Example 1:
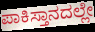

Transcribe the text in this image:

ಪಾಕಿಸ್ತಾನದಲ್ಲೇ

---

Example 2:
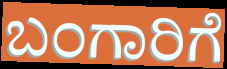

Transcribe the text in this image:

ಬಂಗಾರಿಗೆ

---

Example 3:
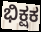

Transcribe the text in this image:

ಭಿಕ್ಷಕ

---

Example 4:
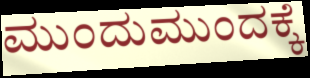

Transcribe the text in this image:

ಮುಂದುಮುಂದಕ್ಕೆ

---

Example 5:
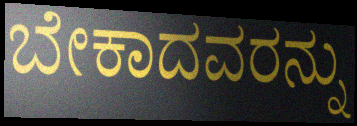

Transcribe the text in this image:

ಬೇಕಾದವರನ್ನು